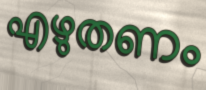
എഴുതണം